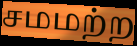
சமமற்ற